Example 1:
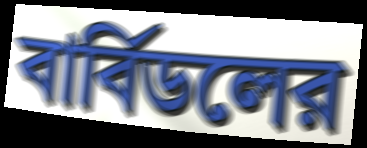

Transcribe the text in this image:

বার্বিডলের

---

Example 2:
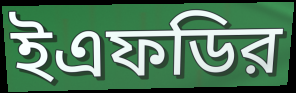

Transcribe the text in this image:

ইএফডির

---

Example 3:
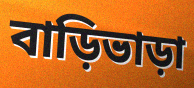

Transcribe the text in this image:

বাড়িভাড়া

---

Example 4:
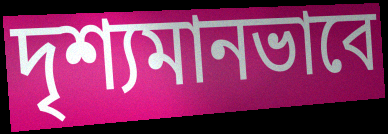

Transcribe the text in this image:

দৃশ্যমানভাবে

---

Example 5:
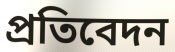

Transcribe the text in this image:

প্রতিবেদন